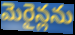
మెరైన్లను